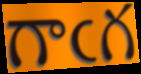
గాఁగ